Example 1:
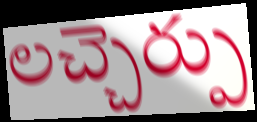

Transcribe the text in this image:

లచ్చెర్పు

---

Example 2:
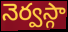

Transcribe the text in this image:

నెర్వస్గా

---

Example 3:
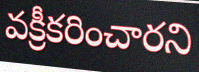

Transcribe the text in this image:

వక్రీకరించారని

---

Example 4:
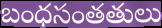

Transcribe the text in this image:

బంధసంతతులు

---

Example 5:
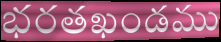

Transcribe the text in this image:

భరతఖండము